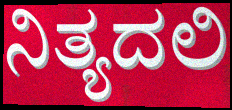
ನಿತ್ಯದಲಿ